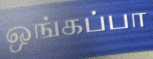
ஒங்கப்பா